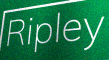
Ripley